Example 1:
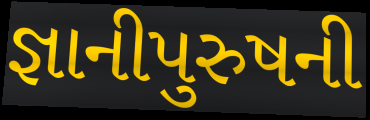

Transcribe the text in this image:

જ્ઞાનીપુરુષની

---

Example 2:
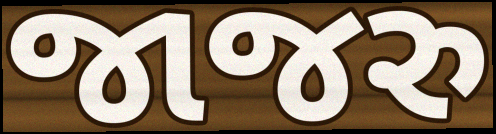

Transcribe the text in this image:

જાજરુ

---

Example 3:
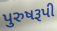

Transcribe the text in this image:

પુરુષરૂપી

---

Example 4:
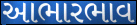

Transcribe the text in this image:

આભારભાવ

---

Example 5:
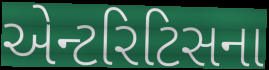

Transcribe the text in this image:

એન્ટરિટિસના